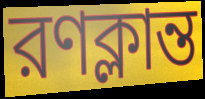
রণক্লান্ত